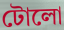
টোলো